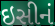
ઇસીનં